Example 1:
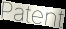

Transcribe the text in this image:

Patent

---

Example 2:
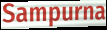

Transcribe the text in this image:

Sampurna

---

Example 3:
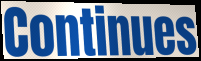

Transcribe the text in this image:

Continues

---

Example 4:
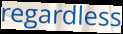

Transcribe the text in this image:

regardless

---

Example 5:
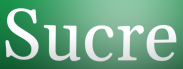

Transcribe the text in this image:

Sucre